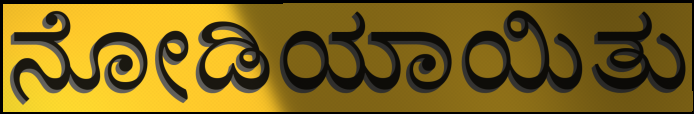
ನೋಡಿಯಾಯಿತು